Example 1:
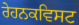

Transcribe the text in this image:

ਰੇਹਨਕਵਿਸਟ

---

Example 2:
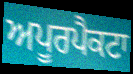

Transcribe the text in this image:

ਅਪੂਰਪੈਕਟਾ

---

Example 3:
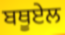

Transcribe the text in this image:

ਬਥੂਏਲ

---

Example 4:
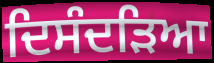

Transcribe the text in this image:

ਦਿਸੰਦੜਿਆ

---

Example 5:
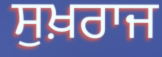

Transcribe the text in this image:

ਸੁਖ਼ਰਾਜ